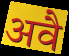
अवै